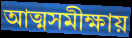
আত্মসমীক্ষায়